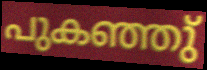
പുകഞ്ഞു്